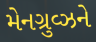
મેનગ્રુવ્ઝને